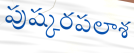
పుష్కరపలాశ